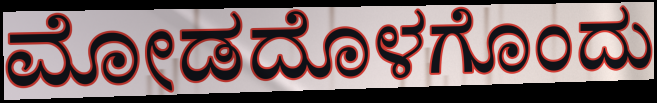
ಮೋಡದೊಳಗೊಂದು